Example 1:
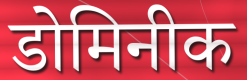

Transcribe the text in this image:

डोमिनीक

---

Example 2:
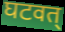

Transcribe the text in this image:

घटवत्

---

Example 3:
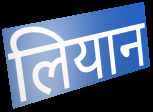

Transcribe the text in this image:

लियान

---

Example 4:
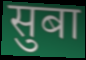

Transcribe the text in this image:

सुबा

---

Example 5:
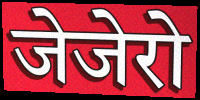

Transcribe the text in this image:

जेजेरो